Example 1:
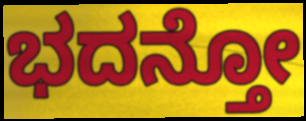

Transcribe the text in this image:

ಭದನ್ತೋ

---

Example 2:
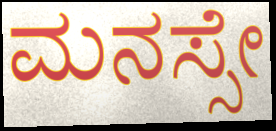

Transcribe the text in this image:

ಮನಸ್ಸೇ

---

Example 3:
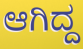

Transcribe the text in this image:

ಆಗಿದ್ದ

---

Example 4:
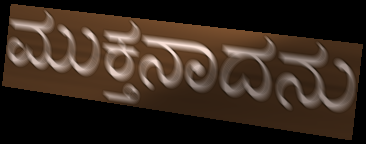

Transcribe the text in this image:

ಮುಕ್ತನಾದನು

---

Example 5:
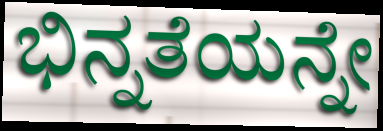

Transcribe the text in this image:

ಭಿನ್ನತೆಯನ್ನೇ